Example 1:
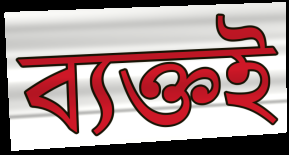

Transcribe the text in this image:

ব্যক্তই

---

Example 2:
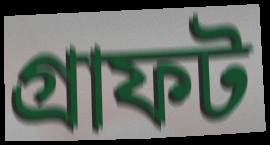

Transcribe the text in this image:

গ্রাফট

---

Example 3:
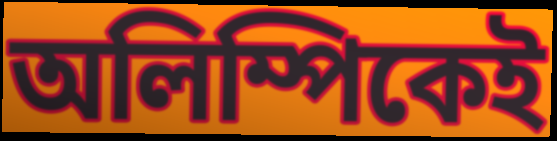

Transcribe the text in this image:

অলিম্পিকেই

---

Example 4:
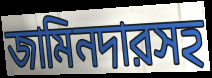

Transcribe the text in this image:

জামিনদারসহ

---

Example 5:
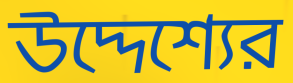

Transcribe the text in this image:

উদ্দেশ্যের